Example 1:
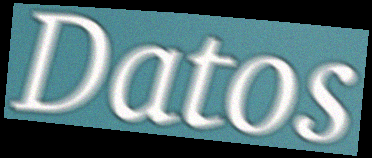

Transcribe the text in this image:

Datos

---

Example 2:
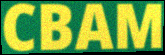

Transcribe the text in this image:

CBAM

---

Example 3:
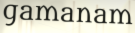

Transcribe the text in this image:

gamanam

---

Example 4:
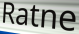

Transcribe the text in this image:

Ratne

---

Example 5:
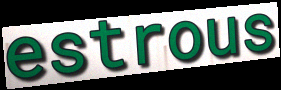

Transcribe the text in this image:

estrous